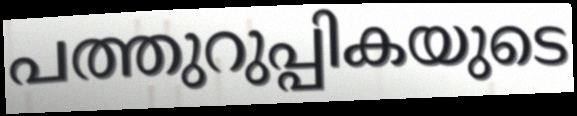
പത്തുറുപ്പികയുടെ